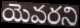
యెవరని